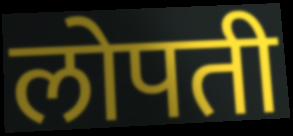
लोपती